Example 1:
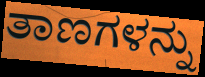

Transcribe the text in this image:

ತಾಣಗಳನ್ನು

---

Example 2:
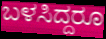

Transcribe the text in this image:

ಬಳಸಿದ್ದರೂ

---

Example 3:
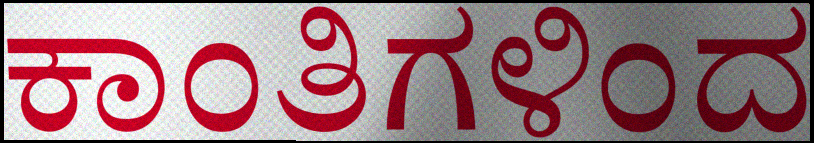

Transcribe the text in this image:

ಕಾಂತಿಗಳಿಂದ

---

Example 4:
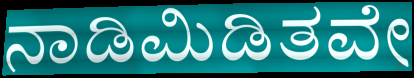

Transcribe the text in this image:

ನಾಡಿಮಿಡಿತವೇ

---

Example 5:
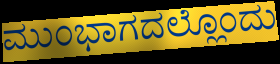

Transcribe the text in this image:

ಮುಂಭಾಗದಲ್ಲೊಂದು